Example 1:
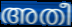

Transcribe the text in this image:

അതീ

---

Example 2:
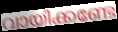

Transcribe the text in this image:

വായിക്കണ്ടേ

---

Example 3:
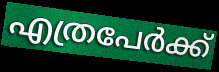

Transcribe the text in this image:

എത്രപേർക്ക്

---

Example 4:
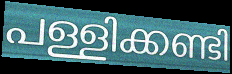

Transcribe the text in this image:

പള്ളിക്കണ്ടി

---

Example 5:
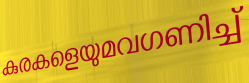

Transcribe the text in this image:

കുരകളെയുമവഗണിച്ച്